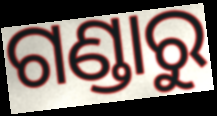
ଗଣ୍ଡାରୁ